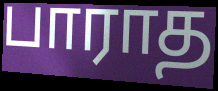
பாராத